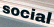
social